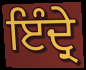
ਇੰਦ੍ਰੇ